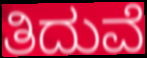
ತಿದುವೆ